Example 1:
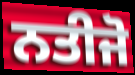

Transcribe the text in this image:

ਨਤੀਜੋ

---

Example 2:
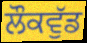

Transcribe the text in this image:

ਲੌਕਵੁੱਡ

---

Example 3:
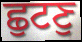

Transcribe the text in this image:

ਛੁਟਣੁ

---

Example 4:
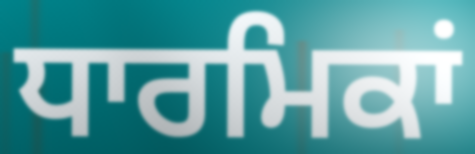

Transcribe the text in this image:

ਧਾਰਮਿਕਾਂ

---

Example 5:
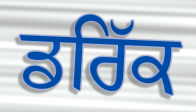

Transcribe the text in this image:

ਡਰਿੱਕ